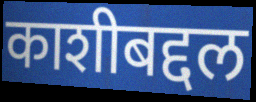
काशीबद्दल